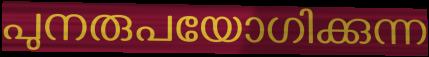
പുനരുപയോഗിക്കുന്ന